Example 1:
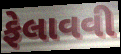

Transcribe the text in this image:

ફેલાવવી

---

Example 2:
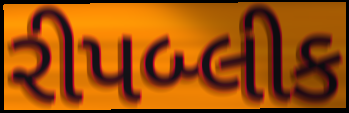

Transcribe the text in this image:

રીપબ્લીક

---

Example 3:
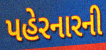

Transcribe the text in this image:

પહેરનારની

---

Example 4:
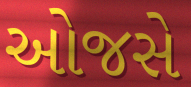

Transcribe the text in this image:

ઓજસે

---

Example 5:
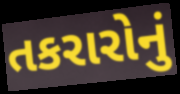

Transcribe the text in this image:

તકરારોનું